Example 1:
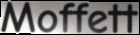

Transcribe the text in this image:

Moffett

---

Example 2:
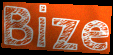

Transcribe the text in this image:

Bize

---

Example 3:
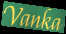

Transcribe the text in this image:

Vanka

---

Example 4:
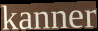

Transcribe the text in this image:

kanner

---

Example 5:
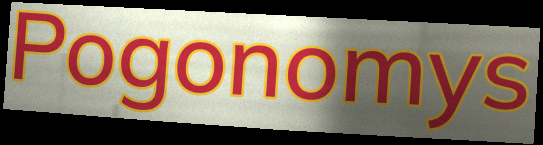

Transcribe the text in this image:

Pogonomys